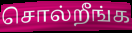
சொல்றீங்க